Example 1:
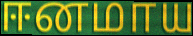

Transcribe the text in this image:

ஈனமாய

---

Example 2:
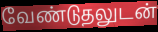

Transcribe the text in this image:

வேண்டுதலுடன்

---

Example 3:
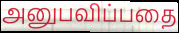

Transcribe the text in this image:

அனுபவிப்பதை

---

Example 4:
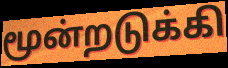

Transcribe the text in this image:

மூன்றடுக்கி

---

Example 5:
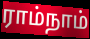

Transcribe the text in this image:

ராம்நாம்